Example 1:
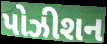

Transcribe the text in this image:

પોઝીશન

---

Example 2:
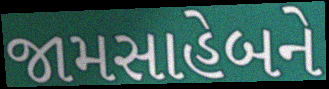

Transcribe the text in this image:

જામસાહેબને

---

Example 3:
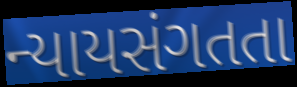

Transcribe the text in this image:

ન્યાયસંગતતા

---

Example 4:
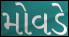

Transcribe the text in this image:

મોવડે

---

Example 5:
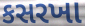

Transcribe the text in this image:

કસરખા